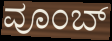
ವೂಂಬ್